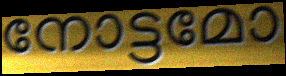
നോട്ടമോ